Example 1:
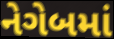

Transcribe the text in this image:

નેગેબમાં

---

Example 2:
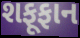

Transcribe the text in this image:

શફૂફાન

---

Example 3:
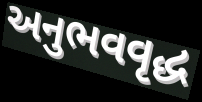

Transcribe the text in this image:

અનુભવવૃદ્ધ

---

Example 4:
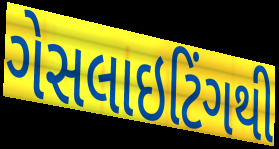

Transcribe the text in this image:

ગેસલાઇટિંગથી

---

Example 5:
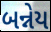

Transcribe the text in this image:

બન્નેય